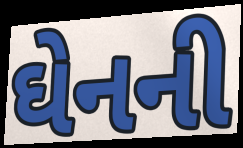
ઘેનની